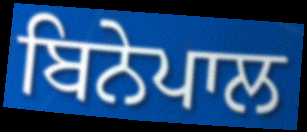
ਬਿਨੇਪਾਲ